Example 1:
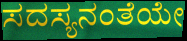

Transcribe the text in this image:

ಸದಸ್ಯನಂತೆಯೇ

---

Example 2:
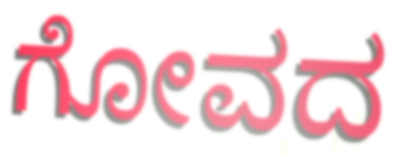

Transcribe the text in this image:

ಗೋವದ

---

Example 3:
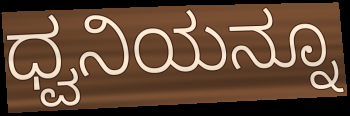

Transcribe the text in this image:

ಧ್ವನಿಯನ್ನೂ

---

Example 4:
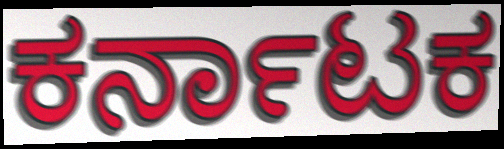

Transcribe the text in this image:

ಕರ್ನಾಟಕ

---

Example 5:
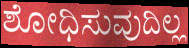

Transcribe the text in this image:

ಶೋಧಿಸುವುದಿಲ್ಲ